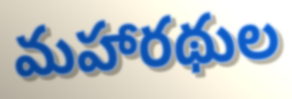
మహారథుల